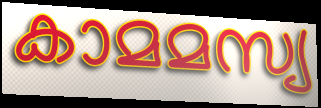
കാമമസ്യ